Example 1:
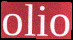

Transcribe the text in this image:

olio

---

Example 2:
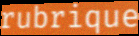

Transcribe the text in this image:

rubrique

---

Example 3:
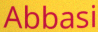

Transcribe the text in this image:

Abbasi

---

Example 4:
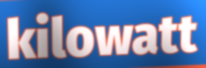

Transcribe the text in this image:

kilowatt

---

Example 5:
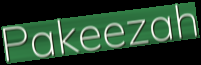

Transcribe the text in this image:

Pakeezah